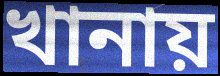
খানায়